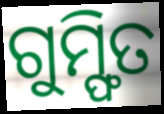
ଗୁମ୍ଫିତ